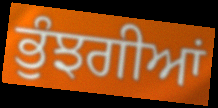
ਭੁੰਝਗੀਆਂ